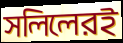
সলিলেরই